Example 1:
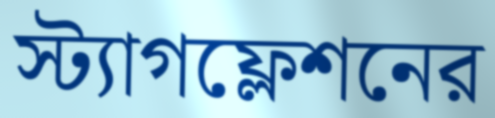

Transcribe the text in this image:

স্ট্যাগফ্লেশনের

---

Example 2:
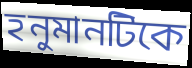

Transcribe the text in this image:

হনুমানটিকে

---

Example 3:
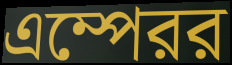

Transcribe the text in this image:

এম্পেরর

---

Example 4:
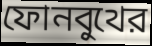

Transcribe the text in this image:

ফোনবুথের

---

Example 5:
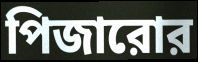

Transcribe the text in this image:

পিজারোর